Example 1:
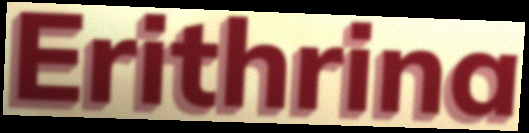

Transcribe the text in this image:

Erithrina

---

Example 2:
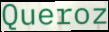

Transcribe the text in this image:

Queroz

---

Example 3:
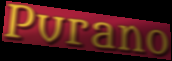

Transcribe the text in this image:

Purano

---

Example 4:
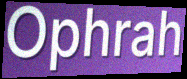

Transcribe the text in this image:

Ophrah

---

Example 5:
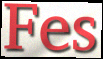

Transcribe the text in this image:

Fes